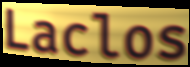
Laclos